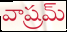
వాష్రమ్